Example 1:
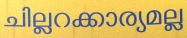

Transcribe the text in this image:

ചില്ലറക്കാര്യമല്ല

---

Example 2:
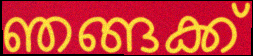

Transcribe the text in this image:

ഞങ്ങക്ക്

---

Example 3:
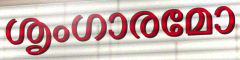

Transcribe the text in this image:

ശൃംഗാരമോ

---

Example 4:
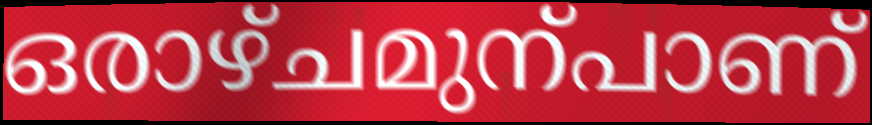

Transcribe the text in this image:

ഒരാഴ്ചമുന്പാണ്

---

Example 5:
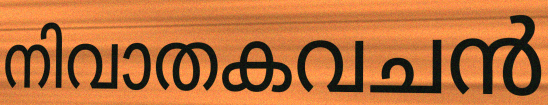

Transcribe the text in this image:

നിവാതകവചൻ